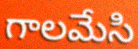
గాలమేసి